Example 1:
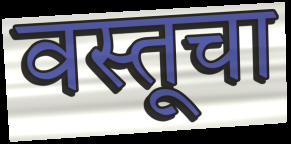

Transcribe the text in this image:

वस्तूचा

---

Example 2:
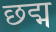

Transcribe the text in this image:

छद्म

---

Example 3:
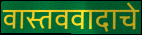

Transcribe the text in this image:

वास्तववादाचे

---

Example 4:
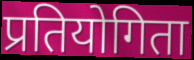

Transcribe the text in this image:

प्रतियोगिता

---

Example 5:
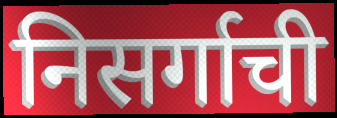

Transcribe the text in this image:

निसर्गाची